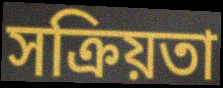
সক্রিয়তা